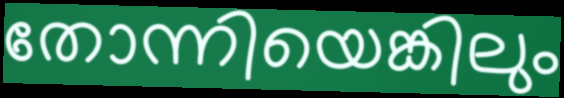
തോന്നിയെങ്കിലും